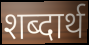
शब्दार्थ